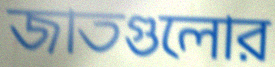
জাতগুলোর